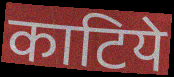
काटिये